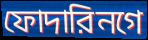
ফোদারিনগে